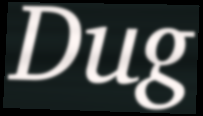
Dug